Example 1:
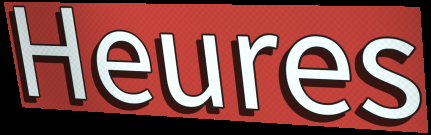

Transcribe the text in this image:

Heures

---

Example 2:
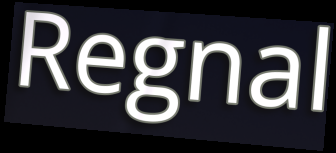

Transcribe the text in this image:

Regnal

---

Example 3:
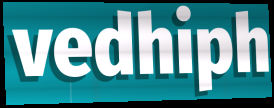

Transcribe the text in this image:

vedhiph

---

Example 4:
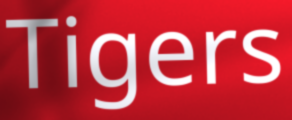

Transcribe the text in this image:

Tigers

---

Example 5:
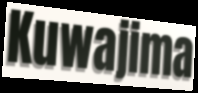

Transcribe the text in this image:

Kuwajima